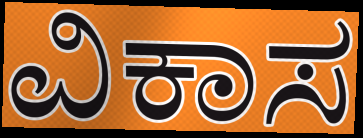
ವಿಕಾಸ